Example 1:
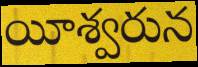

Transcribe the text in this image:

యీశ్వరున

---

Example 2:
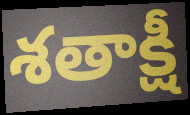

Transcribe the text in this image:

శతాక్షీ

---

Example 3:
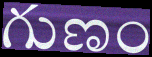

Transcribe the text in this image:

గుణం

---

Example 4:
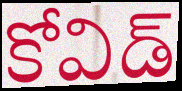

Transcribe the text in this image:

కోవిడ్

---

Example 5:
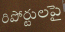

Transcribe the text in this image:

రిపోర్టులపై